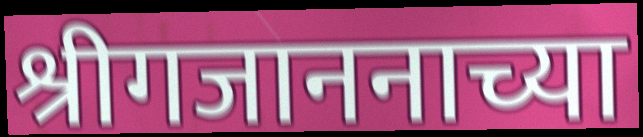
श्रीगजाननाच्या